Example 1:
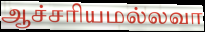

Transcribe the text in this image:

ஆச்சரியமல்லவா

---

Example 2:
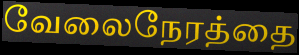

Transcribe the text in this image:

வேலைநேரத்தை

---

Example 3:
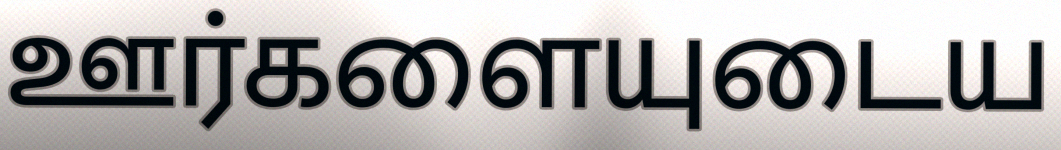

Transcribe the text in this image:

ஊர்களையுடைய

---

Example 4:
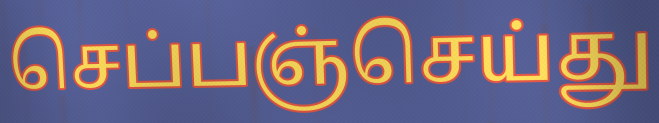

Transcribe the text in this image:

செப்பஞ்செய்து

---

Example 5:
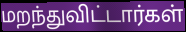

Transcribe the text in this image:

மறந்துவிட்டார்கள்